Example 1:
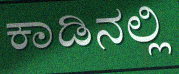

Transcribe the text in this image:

ಕಾಡಿನಲ್ಲಿ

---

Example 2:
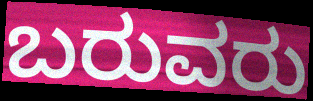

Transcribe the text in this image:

ಬರುವರು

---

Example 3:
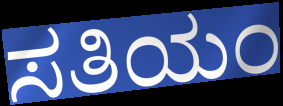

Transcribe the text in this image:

ಸತಿಯಂ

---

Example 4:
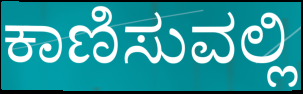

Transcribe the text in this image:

ಕಾಣಿಸುವಲ್ಲಿ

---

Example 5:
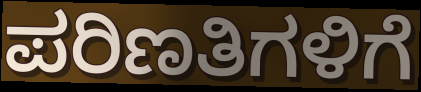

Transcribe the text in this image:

ಪರಿಣತಿಗಳಿಗೆ